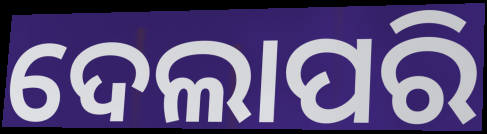
ଦେଲାପରି